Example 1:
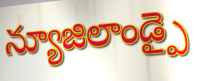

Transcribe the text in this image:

న్యూజిలాండ్పై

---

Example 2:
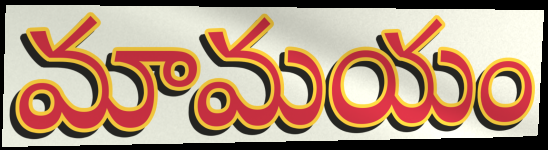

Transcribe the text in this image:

మామయం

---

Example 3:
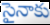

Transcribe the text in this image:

సైనాకు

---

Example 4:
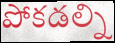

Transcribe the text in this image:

పోకడల్ని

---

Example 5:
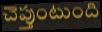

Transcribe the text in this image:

చెప్తుంటుంది